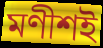
মণীশই